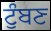
ਟੁੰਬਣ